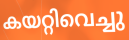
കയറ്റിവെച്ചു